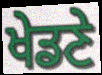
ਖੇਡਣੇ